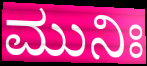
ಮುನಿಃ